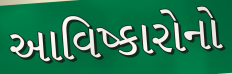
આવિષ્કારોનો